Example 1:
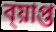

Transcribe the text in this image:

ব্য়াপ্ত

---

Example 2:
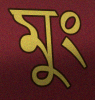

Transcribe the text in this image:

মুং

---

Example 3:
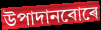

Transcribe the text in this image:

উপাদানবোৰে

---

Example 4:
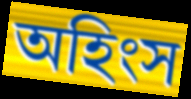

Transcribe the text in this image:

অহিংস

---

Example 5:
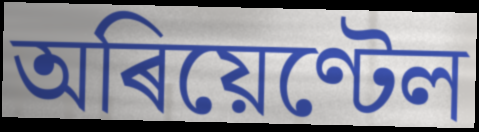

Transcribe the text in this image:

অৰিয়েণ্টেল